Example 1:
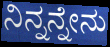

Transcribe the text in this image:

ನಿನ್ನನ್ನೇನು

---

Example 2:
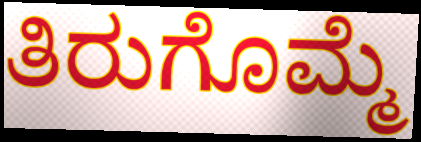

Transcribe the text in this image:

ತಿರುಗೊಮ್ಮೆ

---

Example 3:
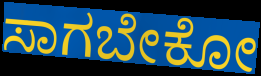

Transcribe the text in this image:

ಸಾಗಬೇಕೋ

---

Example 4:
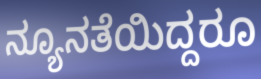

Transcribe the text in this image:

ನ್ಯೂನತೆಯಿದ್ದರೂ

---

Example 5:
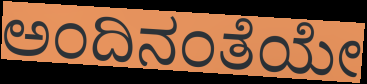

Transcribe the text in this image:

ಅಂದಿನಂತೆಯೇ